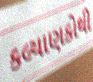
કલ્યાણકોથી